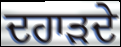
ਦਹਾੜਦੇ